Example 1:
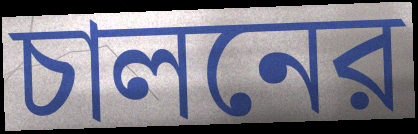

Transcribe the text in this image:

চালনের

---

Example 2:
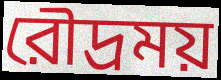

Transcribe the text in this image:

রৌদ্রময়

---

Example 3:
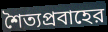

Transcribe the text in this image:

শৈত্যপ্রবাহের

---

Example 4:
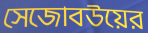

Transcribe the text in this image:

সেজোবউয়ের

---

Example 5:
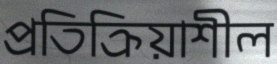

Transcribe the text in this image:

প্রতিক্রিয়াশীল